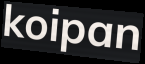
koipan